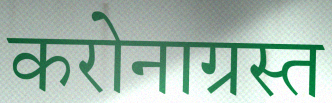
करोनाग्रस्त